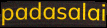
padasalai